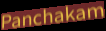
Panchakam